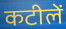
कटीलें